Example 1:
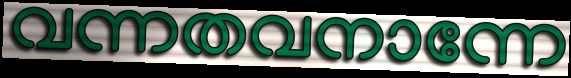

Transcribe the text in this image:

വന്നതവനാന്നേ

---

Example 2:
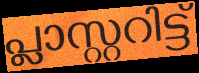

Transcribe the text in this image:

പ്ലാസ്റ്ററിട്ട്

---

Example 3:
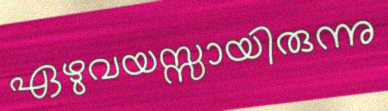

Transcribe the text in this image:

ഏഴുവയസ്സായിരുന്നു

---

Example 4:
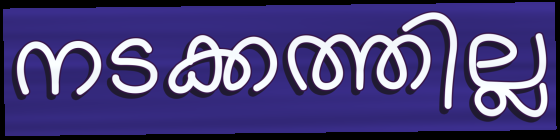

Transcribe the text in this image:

നടക്കത്തില്ല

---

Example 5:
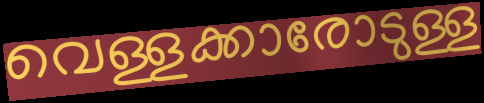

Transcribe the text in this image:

വെള്ളക്കാരോടുള്ള